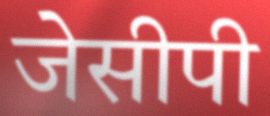
जेसीपी